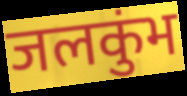
जलकुंभ